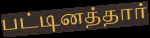
பட்டினத்தார்